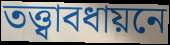
তত্ত্বাবধায়নে